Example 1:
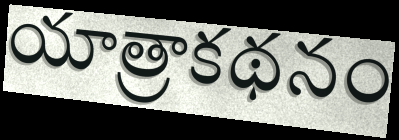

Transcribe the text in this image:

యాత్రాకథనం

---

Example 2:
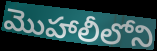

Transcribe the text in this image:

మొహాలీలోని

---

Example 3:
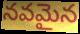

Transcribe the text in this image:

నవమైన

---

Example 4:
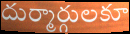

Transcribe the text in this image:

దుర్మార్గులకూ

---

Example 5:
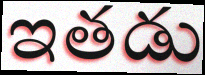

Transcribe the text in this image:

ఇతడు